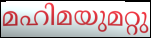
മഹിമയുമറ്റു